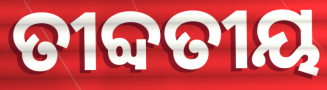
ତୀବ୍ଦତୀୟ